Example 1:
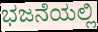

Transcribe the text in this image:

ಭಜನೆಯಲ್ಲಿ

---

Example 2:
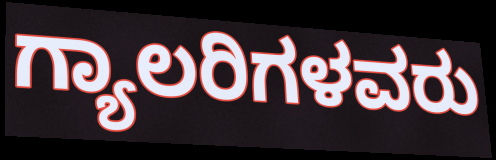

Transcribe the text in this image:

ಗ್ಯಾಲರಿಗಳವರು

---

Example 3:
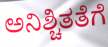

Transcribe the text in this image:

ಅನಿಶ್ಚಿತತೆಗೆ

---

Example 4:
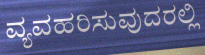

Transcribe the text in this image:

ವ್ಯವಹರಿಸುವುದರಲ್ಲಿ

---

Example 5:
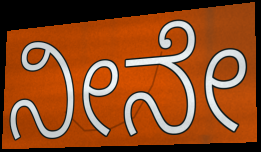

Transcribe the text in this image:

ನೀನೇ